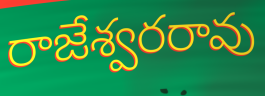
రాజేశ్వరరావు